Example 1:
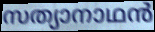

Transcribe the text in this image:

സത്യാനാഥൻ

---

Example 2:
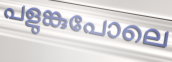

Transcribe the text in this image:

പളുങ്കുപോലെ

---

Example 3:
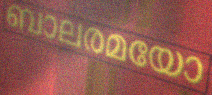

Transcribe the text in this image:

ബാലരമയോ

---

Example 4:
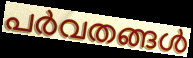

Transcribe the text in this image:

പർവതങ്ങൾ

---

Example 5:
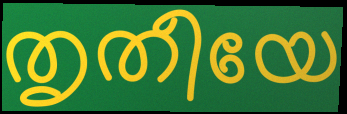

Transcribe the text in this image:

തൃതീയേ